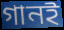
গানই